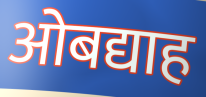
ओबद्याह